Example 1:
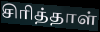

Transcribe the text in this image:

சிரித்தாள்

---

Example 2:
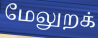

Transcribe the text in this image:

மேலுறக்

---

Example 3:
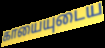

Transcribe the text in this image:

காயையுடைய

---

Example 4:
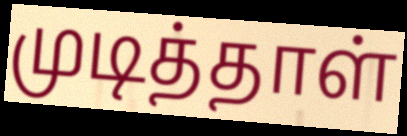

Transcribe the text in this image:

முடித்தாள்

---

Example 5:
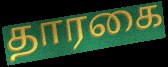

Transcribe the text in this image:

தாரகை